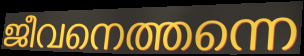
ജീവനെത്തന്നെ